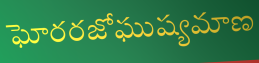
ఘోరరజోఘుష్యమాణ